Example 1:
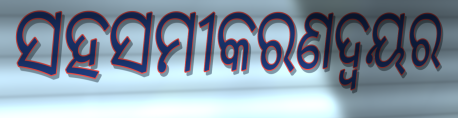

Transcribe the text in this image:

ସହସମୀକରଣଦ୍ୱୟର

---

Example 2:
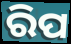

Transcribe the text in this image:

ରିପ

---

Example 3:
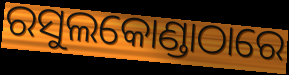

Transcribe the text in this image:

ରସୁଲକୋଣ୍ଡାଠାରେ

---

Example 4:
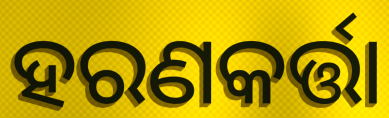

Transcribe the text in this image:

ହରଣକର୍ତ୍ତା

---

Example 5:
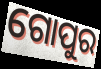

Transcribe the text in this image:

ଗୋପୁର